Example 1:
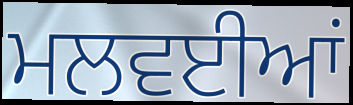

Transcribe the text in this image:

ਮਲਵਈਆਂ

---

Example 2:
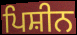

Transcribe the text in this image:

ਪਿਸ਼ੀਨ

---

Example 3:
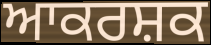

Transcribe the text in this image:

ਆਕਰਸ਼ਕ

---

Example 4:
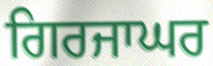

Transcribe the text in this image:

ਗਿਰਜਾਘਰ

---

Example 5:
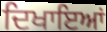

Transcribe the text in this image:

ਦਿਖਾਇਆਂ